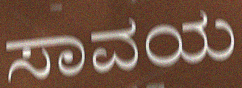
ಸಾವಯ